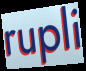
rupli